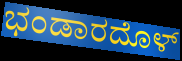
ಭಂಡಾರದೊಳ್